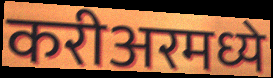
करीअरमध्ये